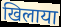
खिलाया